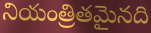
నియంత్రితమైనది